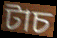
টাচ